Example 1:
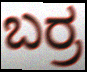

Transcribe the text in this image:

ಬರ್ರ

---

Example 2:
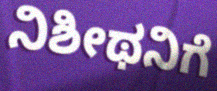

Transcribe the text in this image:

ನಿಶೀಥನಿಗೆ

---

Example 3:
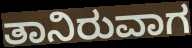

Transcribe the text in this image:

ತಾನಿರುವಾಗ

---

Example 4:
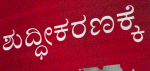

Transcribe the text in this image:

ಶುದ್ಧೀಕರಣಕ್ಕೆ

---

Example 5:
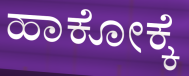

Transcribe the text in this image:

ಹಾಕೋಕ್ಕೆ